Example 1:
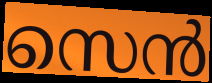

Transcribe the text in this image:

സെൻ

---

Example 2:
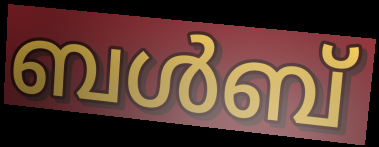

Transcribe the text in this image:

ബൾബ്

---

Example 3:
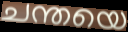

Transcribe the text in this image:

ചന്തയെ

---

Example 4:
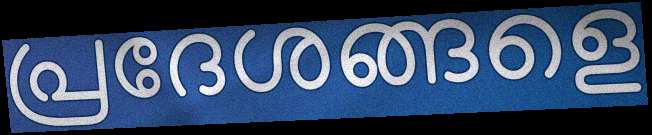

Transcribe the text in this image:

പ്രദേശങ്ങളെ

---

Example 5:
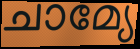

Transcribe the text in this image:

ചാമ്യേ